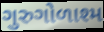
ગુરુગોળાશ્મ